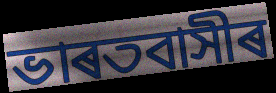
ভাৰতবাসীৰ